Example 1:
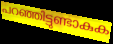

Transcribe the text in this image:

പറഞ്ഞിട്ടുണ്ടാകുക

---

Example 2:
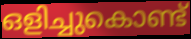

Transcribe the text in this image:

ഒളിച്ചുകൊണ്ട്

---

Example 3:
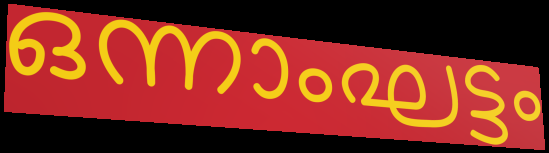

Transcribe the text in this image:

ഒന്നാംഘട്ടം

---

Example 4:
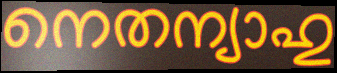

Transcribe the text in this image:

നെതന്യാഹു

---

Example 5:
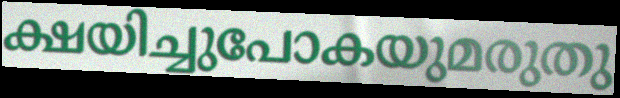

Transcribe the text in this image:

ക്ഷയിച്ചുപോകയുമരുതു